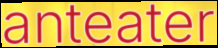
anteater